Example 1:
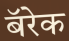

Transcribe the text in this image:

बॅरेक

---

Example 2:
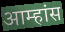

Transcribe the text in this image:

आम्हांस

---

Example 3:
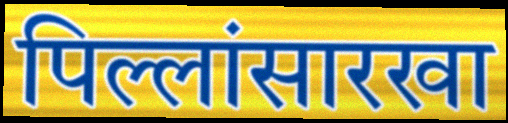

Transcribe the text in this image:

पिल्लांसारखा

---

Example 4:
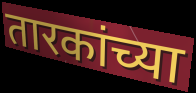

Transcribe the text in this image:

तारकांच्या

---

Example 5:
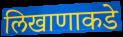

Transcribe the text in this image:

लिखाणाकडे